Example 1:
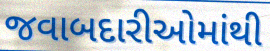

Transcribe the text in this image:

જવાબદારીઓમાંથી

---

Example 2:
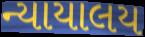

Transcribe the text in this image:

ન્યાયાલય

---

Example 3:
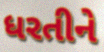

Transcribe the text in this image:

ધરતીને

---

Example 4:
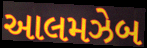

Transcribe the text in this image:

આલમઝેબ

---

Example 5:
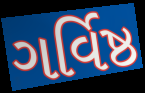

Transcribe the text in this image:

ગર્વિષ્ઠ